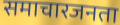
समाचारजनता